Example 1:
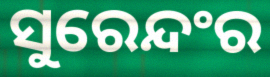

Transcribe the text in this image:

ସୁରେନ୍ଦଂର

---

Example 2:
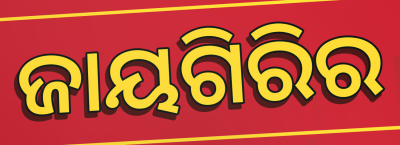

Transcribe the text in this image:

ଜାୟଗିରିର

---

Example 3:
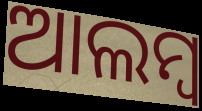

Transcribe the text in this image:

ଆଲମ୍ବ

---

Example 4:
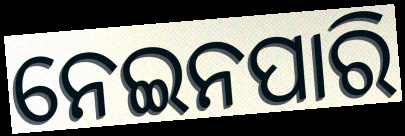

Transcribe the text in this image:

ନେଇନପାରି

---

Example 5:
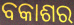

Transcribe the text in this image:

ବକାଶର